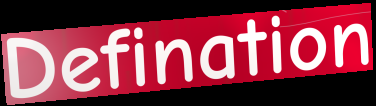
Defination